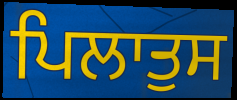
ਪਿਲਾਤੁਸ